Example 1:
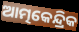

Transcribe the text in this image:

ଆତ୍ମକେନ୍ଦ୍ରିକ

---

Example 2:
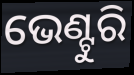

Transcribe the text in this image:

ଭେଣ୍ଟୁରି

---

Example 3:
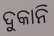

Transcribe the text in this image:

ଦୁକାନି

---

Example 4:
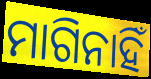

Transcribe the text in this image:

ମାଗିନାହିଁ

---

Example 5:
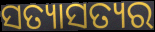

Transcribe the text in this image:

ସତ୍ୟାସତ୍ୟର